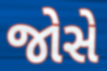
જોસે